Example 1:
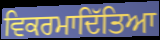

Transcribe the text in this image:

ਵਿਕਰਮਾਦਿੱਤਿਆ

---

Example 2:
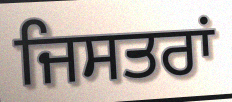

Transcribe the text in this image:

ਜਿਸਤਰਾਂ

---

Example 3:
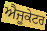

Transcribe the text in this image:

ਐਜੂਕੇਟਰ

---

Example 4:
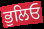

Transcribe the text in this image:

ਭੁਲਿਓ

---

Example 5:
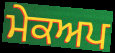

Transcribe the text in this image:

ਮੇਕਅਪ